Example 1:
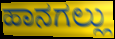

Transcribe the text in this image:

ಹಾನಗಲ್ಲು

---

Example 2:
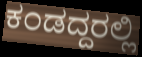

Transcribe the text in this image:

ಕಂಡದ್ದರಲ್ಲಿ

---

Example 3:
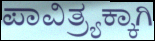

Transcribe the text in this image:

ಪಾವಿತ್ರ್ಯಕ್ಕಾಗಿ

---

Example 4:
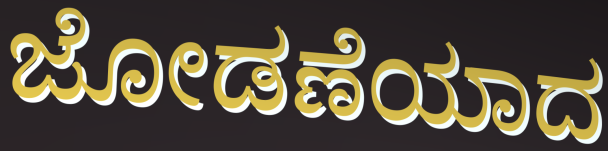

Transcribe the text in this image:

ಜೋಡಣೆಯಾದ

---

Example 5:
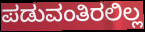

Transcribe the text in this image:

ಪಡುವಂತಿರಲಿಲ್ಲ